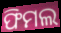
ଫିମଲ